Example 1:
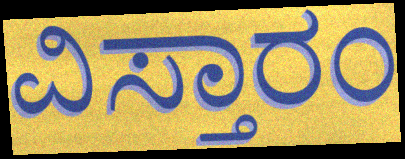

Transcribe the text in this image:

ವಿಸ್ತಾರಂ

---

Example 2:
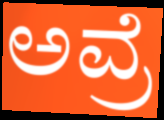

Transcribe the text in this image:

ಅವ್ರೆ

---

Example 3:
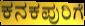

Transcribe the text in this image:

ಕನಕಪುರಿಗೆ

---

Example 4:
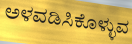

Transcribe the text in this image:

ಅಳವಡಿಸಿಕೊಳ್ಳುವ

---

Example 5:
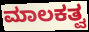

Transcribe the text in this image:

ಮಾಲಕತ್ವ